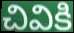
చివికి